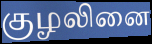
குழலினை